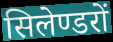
सिलेण्डरों